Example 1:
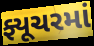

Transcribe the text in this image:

ફ્યૂચરમાં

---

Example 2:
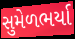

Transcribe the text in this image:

સુમેળભર્યા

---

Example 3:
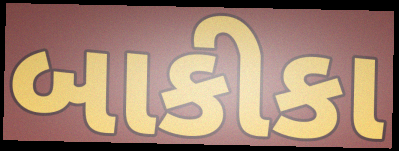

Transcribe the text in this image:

બાકીકા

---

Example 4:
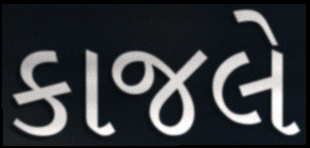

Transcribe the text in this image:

કાજલે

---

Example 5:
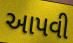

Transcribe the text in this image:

આપવી